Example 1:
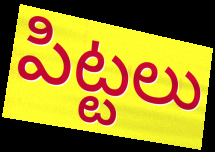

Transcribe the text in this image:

పిట్టలు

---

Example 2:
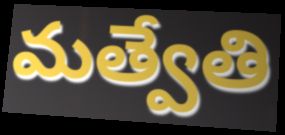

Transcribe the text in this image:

మత్వేతి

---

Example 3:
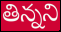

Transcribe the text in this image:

తిన్నని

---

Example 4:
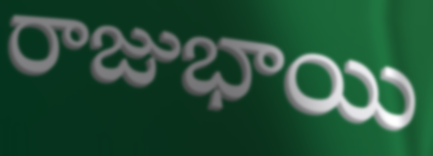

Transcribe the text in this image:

రాజుభాయి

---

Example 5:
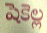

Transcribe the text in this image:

షెకెల్ల